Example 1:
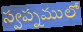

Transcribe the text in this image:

స్వప్నములో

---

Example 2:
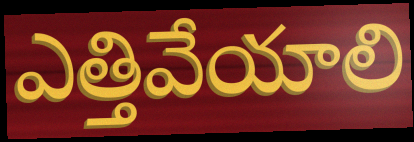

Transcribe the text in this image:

ఎత్తివేయాలి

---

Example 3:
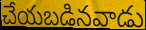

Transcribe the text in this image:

చేయబడినవాడు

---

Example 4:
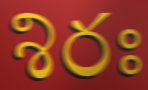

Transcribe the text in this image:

శిరః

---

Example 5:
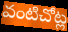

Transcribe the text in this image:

వంటిచోట్ల